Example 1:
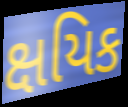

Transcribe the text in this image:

ક્ષયિક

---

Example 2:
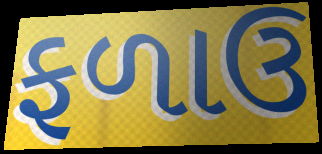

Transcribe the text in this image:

ફળાઉ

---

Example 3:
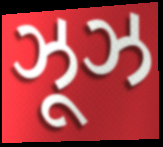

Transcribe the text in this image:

ઝૂઝ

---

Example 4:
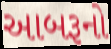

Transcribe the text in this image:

આબરૂનો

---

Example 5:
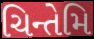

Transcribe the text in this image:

ચિન્તેમિ